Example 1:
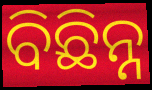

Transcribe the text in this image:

ବିଛିନ୍ନ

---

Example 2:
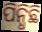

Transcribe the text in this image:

ପିନ୍ଧିଛି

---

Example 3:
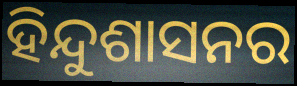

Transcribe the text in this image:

ହିନ୍ଦୁଶାସନର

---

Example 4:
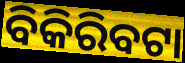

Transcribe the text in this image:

ବିକିରିବଟା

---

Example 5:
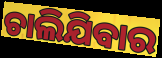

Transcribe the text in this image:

ଚାଲିଯିବାର